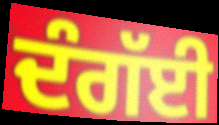
ਦੰਗੱਈ